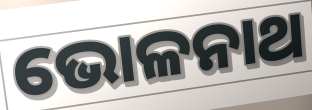
ଭୋଳନାଥ